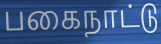
பகைநாட்டு